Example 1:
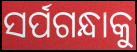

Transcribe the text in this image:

ସର୍ପଗନ୍ଧାକୁ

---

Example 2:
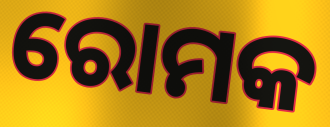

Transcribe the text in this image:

ରୋମକ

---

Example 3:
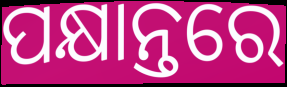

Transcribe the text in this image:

ପକ୍ଷାନ୍ତରେ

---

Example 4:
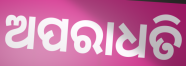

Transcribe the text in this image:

ଅପରାଧତି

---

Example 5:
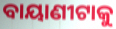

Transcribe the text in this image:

ବାୟାଣୀଟାକୁ